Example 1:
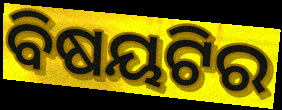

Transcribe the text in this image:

ବିଷୟଟିର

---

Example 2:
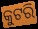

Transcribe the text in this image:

କୁଟରି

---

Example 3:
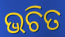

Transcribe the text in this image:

ଭଚିତ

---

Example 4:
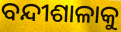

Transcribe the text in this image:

ବନ୍ଦୀଶାଳାକୁ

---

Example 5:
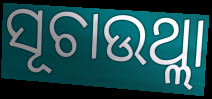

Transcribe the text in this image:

ସୂଚାଉଥ୍ଲା